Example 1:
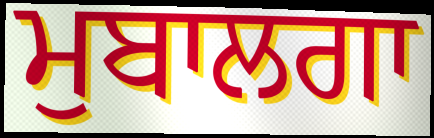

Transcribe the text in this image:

ਮੁਬਾਲਗਾ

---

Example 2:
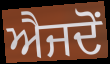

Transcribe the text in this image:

ਐਜਦੋਂ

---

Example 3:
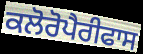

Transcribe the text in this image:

ਕਲੋਰੋਪੈਰੀਫਾਸ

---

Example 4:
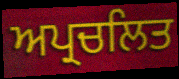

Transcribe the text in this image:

ਅਪ੍ਰਚਲਿਤ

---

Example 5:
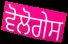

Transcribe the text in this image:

ਵੋਲੋਗੇਸ